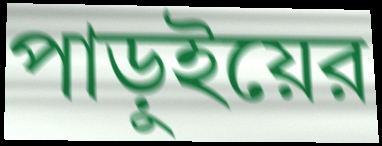
পাড়ুইয়ের